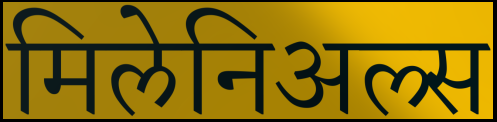
मिलेनिअल्स